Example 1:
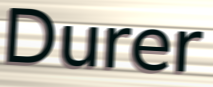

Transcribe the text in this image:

Durer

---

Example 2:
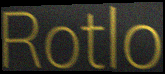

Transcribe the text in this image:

Rotlo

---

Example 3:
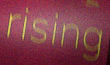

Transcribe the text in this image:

rising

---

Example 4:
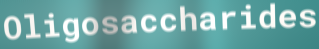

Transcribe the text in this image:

Oligosaccharides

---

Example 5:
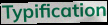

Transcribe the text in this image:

Typification